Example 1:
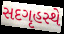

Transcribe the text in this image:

સદગૃહસ્થે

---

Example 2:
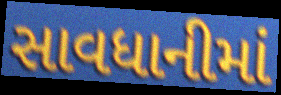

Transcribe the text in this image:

સાવધાનીમાં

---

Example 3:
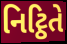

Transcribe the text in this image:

નિટ્ઠિતે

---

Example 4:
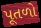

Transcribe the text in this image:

પૂતળો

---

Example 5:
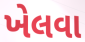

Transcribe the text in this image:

ખેલવા